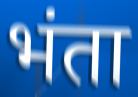
भंता